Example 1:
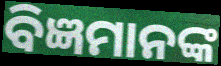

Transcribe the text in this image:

ବିଜ୍ଞମାନଙ୍କ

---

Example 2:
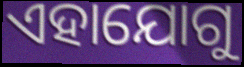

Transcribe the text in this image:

ଏହାଯୋଗୁ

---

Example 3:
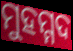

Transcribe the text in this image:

ମୁହମ୍ମଦ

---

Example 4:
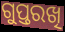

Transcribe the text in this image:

ଗୁପ୍ତରଖି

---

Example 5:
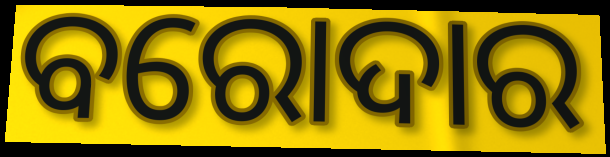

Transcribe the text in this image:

ବରୋଦାର